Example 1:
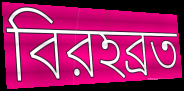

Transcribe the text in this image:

বিরহব্রত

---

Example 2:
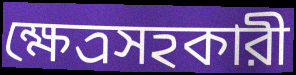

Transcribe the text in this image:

ক্ষেত্রসহকারী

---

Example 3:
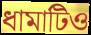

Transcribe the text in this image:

ধামাটিও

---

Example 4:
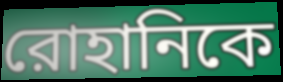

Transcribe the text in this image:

রোহানিকে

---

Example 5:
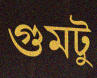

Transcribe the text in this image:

গুমটু